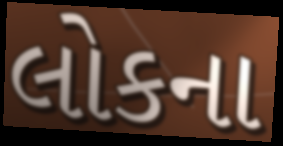
લોકના